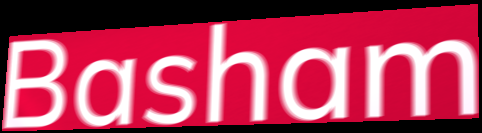
Basham